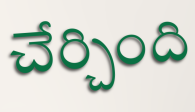
చేర్చింది